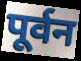
पूर्वन